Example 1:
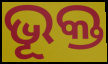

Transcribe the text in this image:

ଭୂକ୍ତ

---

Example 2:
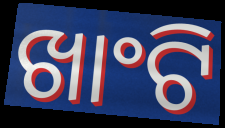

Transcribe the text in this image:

ଖାଂଟି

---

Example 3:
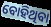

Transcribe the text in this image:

ବୋହିଥିବା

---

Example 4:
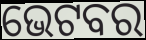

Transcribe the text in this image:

ଭେଟବର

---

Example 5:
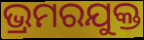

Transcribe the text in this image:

ଭ୍ରମରଯୁକ୍ତ